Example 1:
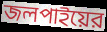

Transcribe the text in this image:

জলপাইয়ের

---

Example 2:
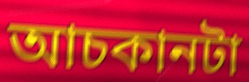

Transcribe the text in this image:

আচকানটা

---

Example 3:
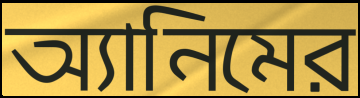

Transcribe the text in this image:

অ্যানিমের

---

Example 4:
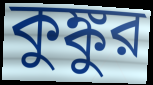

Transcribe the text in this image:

কুঙ্কুর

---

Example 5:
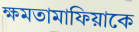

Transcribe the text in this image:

ক্ষমতামাফিয়াকে